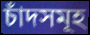
চাঁদসমূহ